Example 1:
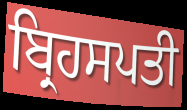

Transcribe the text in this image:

ਬ੍ਰਿਹਸਪਤੀ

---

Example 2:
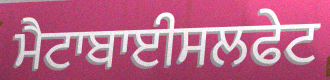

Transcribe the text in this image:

ਮੈਟਾਬਾਈਸਲਫੇਟ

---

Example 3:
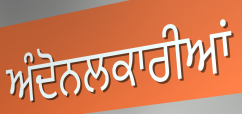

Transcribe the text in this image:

ਅੰਦੋਨਲਕਾਰੀਆਂ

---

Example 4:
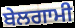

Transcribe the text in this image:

ਬੇਲਗਾਮੀ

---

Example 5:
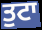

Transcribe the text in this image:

ਤੁਟਾ